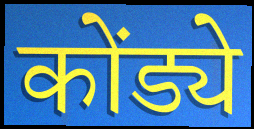
कोंड्ये